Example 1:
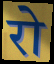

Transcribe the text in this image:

रो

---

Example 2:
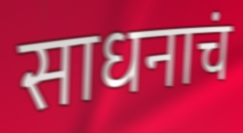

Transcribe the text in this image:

साधनाचं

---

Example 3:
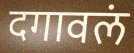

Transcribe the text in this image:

दगावलं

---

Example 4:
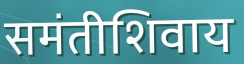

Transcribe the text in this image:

समंतीशिवाय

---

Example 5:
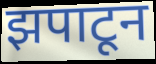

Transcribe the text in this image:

झपाटून